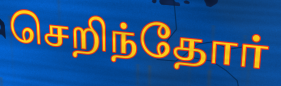
செறிந்தோர்